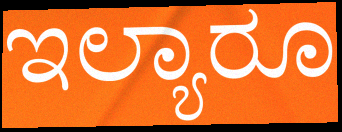
ಇಲ್ಯಾರೂ